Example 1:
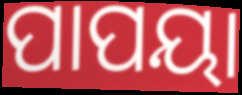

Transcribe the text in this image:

ପାପୟା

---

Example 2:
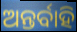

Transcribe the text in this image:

ଅନ୍ତର୍ବାହି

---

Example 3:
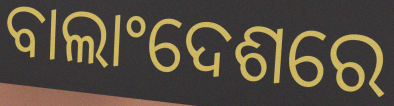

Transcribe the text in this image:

ବାଲାଂଦେଶରେ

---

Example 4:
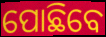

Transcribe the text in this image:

ପୋଛିବେ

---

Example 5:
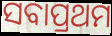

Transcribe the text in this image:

ସବାପ୍ରଥମ